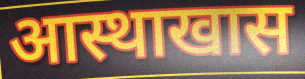
आस्थाखास